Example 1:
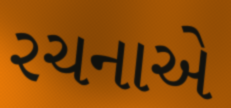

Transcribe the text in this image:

રચનાએ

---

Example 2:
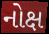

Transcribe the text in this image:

નોક્ષ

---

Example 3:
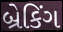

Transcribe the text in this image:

બ્રેકિંગ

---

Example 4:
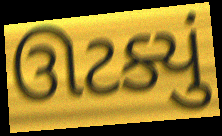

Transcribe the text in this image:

ઊટક્યું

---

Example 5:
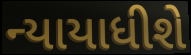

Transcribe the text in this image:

ન્યાયાધીશે